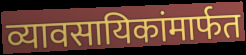
व्यावसायिकांमार्फत